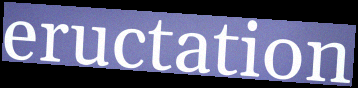
eructation